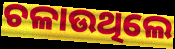
ଚଳାଉଥିଲେ